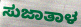
ಸುಜಾತಾಳ